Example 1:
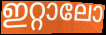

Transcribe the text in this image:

ഇറ്റാലോ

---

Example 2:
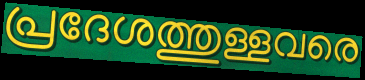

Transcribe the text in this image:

പ്രദേശത്തുള്ളവരെ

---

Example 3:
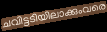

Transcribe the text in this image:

ചവിട്ടടിയിലാക്കുംവരെ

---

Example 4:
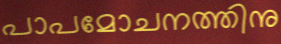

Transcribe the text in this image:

പാപമോചനത്തിനു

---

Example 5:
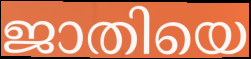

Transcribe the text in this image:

ജാതിയെ